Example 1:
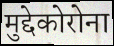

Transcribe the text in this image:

मुद्देकोरोना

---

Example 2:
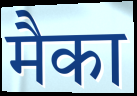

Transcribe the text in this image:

मैका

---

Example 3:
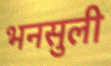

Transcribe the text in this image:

भनसुली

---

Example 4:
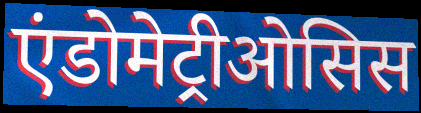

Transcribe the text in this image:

एंडोमेट्रीओसिस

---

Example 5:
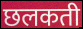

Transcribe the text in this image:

छलकती